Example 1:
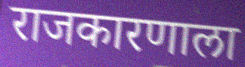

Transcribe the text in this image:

राजकारणाला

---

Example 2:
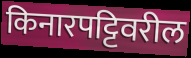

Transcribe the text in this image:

किनारपट्टिवरील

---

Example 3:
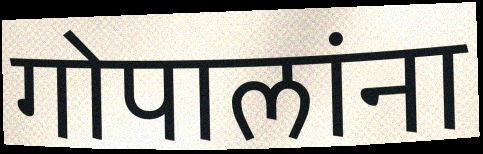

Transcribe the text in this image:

गोपालांना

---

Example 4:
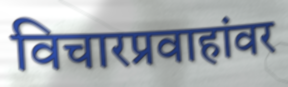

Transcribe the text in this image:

विचारप्रवाहांवर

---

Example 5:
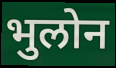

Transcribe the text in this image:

भुलोन